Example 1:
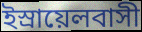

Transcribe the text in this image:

ইস্রায়েলবাসী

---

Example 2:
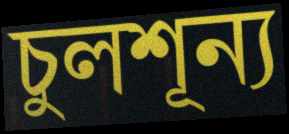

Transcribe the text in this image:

চুলশূন্য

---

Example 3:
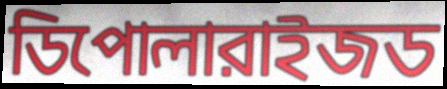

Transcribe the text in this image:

ডিপোলারাইজড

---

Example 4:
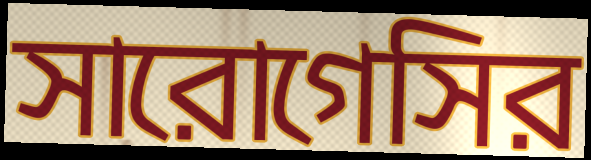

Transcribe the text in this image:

সারোগেসির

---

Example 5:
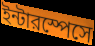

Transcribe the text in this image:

ইন্টারস্পেসে